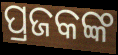
ପ୍ରଜକଙ୍କ